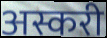
अस्करी